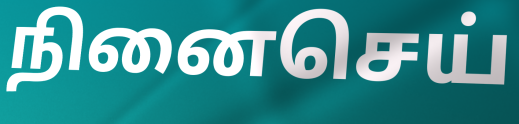
நினைசெய்